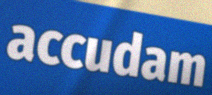
accudam